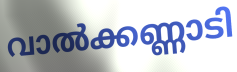
വാൽക്കണ്ണാടി